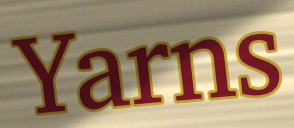
Yarns